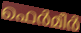
ഫെർമീർ